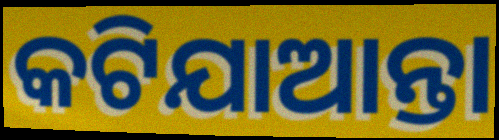
କଟିଯାଆନ୍ତା